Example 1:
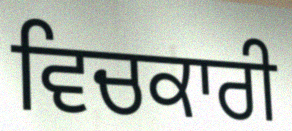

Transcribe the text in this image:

ਵਿਚਕਾਰੀ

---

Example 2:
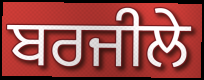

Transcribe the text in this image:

ਬਰਜੀਲੇ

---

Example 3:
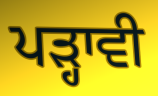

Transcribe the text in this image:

ਪੜ੍ਹਾਵੀ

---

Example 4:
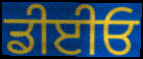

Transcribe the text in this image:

ਡੀਈਓ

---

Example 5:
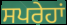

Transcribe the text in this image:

ਸਪਰੇਹਾਂ